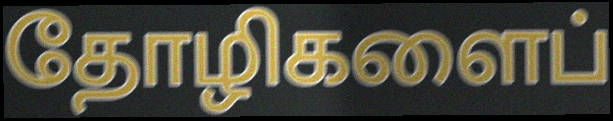
தோழிகளைப்